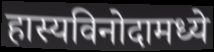
हास्यविनोदामध्ये